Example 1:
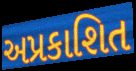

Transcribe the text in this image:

અપ્રકાશિત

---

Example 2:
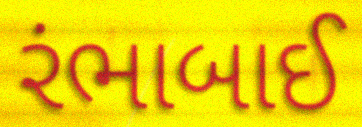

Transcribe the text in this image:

રંભાબાઈ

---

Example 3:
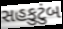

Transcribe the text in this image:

સહકુટુંબ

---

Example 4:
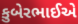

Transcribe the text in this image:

કુબેરભાઈએ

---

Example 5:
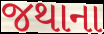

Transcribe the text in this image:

જથાના